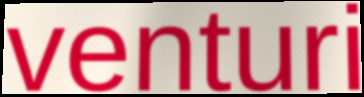
venturi